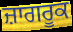
ਜ਼ਾਗਰੂਕ